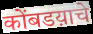
कोंबडय़ाचे